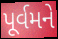
પૂર્વમને